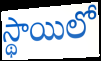
స్థాయిలో